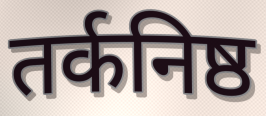
तर्कनिष्ठ